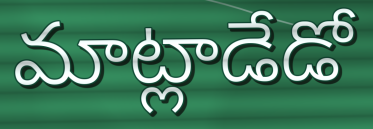
మాట్లాడేడో